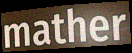
mather